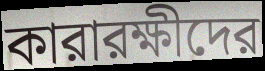
কারারক্ষীদের